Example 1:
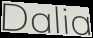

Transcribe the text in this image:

Dalia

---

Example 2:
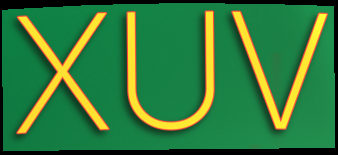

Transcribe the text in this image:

XUV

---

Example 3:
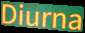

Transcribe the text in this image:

Diurna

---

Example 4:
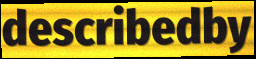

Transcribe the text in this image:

describedby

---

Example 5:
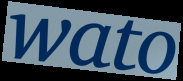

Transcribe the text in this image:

wato